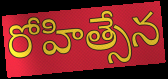
రోహిత్సేన